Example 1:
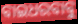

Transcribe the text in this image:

ବାଇଧରବାବୁ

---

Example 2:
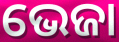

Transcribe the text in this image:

ଭେଜା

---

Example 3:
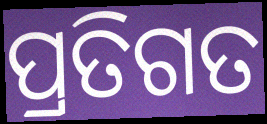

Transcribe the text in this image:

ପ୍ରତିଗତ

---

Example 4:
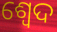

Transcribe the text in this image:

ଶ୍ଵେଦ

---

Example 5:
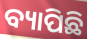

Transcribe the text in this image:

ବ୍ୟାପିଛି